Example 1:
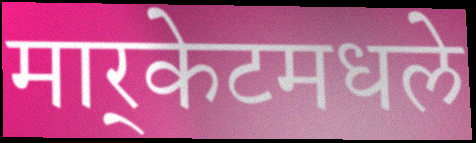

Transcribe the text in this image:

मार्केटमधले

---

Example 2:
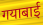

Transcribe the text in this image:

गयाबाई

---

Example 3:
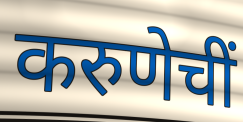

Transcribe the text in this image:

करुणेचीं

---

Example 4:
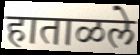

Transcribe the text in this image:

हाताळले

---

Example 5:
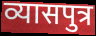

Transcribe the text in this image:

व्यासपुत्र